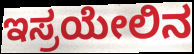
ಇಸ್ರಯೇಲಿನ